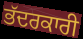
ਭੱਦਰਕਾਰੀ